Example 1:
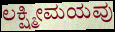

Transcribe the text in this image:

ಲಕ್ಷ್ಮೀಮಯವು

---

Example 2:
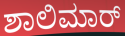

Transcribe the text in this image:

ಶಾಲಿಮಾರ್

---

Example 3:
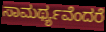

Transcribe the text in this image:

ಸಾಮರ್ಥ್ಯವೆಂದರೆ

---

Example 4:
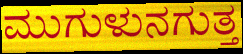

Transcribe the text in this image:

ಮುಗುಳುನಗುತ್ತ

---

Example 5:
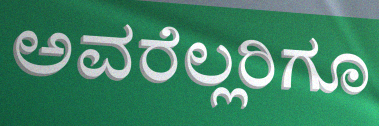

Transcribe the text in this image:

ಅವರೆಲ್ಲರಿಗೂ